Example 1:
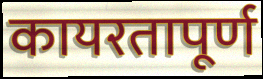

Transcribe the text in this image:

कायरतापूर्ण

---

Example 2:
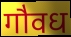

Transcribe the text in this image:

गौवध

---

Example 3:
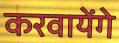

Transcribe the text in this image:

करवायेंगे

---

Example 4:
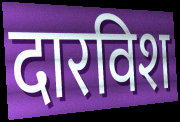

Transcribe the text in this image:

दारविश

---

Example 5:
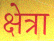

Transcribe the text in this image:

क्षेत्रा